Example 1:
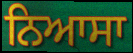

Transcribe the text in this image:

ਨਿਆਸਾ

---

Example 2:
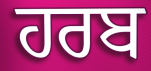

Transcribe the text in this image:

ਹਰਬ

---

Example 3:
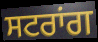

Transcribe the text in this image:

ਸਟਰਾਂਗ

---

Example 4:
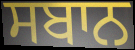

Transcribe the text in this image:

ਸਬਾਨ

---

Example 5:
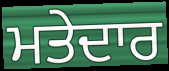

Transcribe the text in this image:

ਮਤੇਦਾਰ